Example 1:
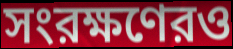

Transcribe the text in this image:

সংরক্ষণেরও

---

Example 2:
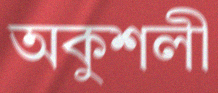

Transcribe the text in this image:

অকুশলী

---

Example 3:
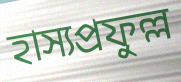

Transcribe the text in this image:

হাস্যপ্রফুল্ল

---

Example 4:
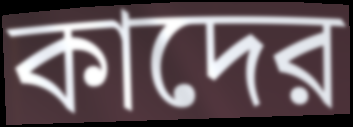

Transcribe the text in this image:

কাদের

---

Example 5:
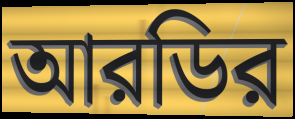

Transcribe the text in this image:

আরডির